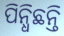
ପିନ୍ଧିଛନ୍ତି